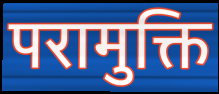
परामुक्ति